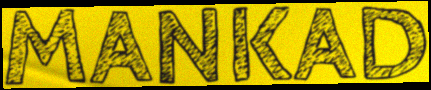
MANKAD